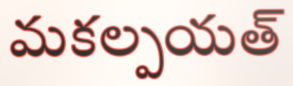
మకల్పయత్